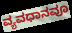
ವ್ಯವಧಾನವೂ